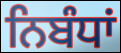
ਨਿਬੰਧਾਂ